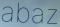
abaz